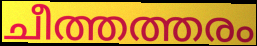
ചീത്തത്തരം